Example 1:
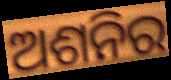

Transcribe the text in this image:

ଅଶନିର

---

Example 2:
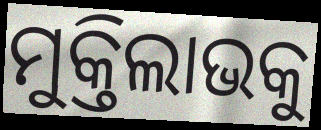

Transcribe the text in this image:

ମୁକ୍ତିଲାଭକୁ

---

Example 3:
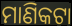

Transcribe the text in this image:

ମାଣିକଟା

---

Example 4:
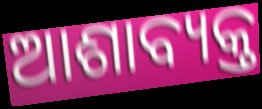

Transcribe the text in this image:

ଆଶାବ୍ୟକ୍ତ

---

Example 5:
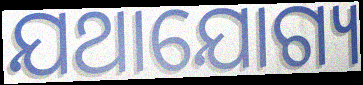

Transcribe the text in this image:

ଯଥାଯୋଗ୍ୟ